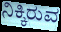
ನಿಕ್ಕಿರುವ